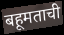
बहूमताची